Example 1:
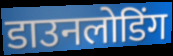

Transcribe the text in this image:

डाउनलोडिंग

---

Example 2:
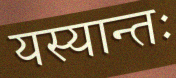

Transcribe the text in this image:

यस्यान्तः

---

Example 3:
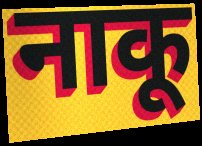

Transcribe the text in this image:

नाकू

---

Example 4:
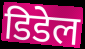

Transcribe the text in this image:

डिडेल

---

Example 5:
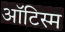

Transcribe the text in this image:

ऑटिस्म